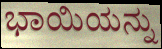
ಭಾಯಿಯನ್ನು